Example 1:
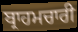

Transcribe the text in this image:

ਬ੍ਰਾਹਮਚਾਰੀ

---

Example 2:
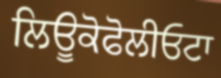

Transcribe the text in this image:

ਲਿਊਕੋਫੋਲੀਓਟਾ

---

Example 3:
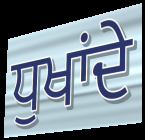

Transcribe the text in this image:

ਧੁਖਾਂਦੇ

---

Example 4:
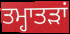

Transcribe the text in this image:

ਤਮ੍ਹਾਤੜਾਂ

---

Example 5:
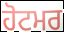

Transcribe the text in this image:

ਹੋਟਮਰ